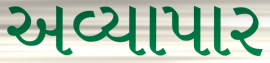
અવ્યાપાર